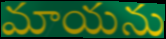
మాయను